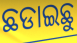
ଛଡାଇଛୁ